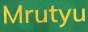
Mrutyu